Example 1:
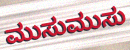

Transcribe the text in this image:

ಮುಸುಮುಸು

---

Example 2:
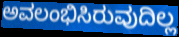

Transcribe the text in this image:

ಅವಲಂಭಿಸಿರುವುದಿಲ್ಲ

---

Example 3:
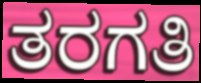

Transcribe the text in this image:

ತರಗತಿ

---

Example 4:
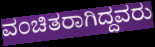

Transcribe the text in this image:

ವಂಚಿತರಾಗಿದ್ದವರು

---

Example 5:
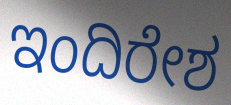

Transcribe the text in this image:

ಇಂದಿರೇಶ